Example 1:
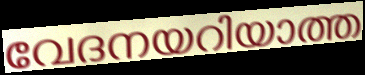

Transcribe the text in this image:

വേദനയറിയാത്ത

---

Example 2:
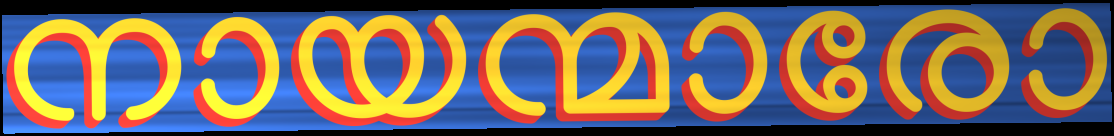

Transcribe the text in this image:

നായന്മാരോ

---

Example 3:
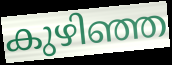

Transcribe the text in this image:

കുഴിഞ്ഞ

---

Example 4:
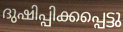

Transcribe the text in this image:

ദുഷിപ്പിക്കപ്പെട്ടു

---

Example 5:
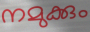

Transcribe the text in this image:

നമുക്കും